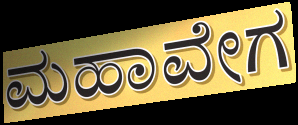
ಮಹಾವೇಗ